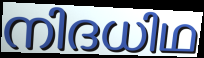
നിദധിഥ